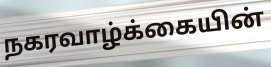
நகரவாழ்க்கையின்